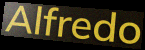
Alfredo